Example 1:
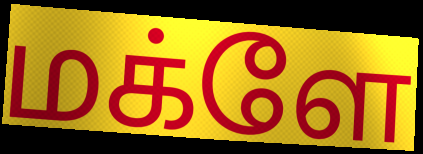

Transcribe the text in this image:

மக்ளே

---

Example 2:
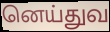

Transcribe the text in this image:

னெய்துவ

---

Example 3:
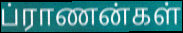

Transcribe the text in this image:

ப்ராணன்கள்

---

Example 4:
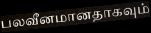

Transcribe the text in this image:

பலவீனமானதாகவும்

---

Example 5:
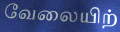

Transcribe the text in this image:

வேலையிற்